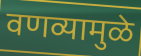
वणव्यामुळे